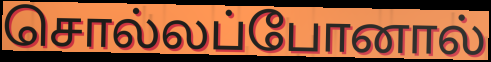
சொல்லப்போனால்